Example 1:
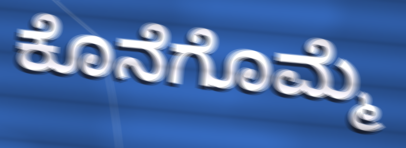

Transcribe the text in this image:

ಕೊನೆಗೊಮ್ಮೆ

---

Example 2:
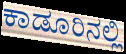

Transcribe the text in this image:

ಕಾಡೂರಿನಲ್ಲಿ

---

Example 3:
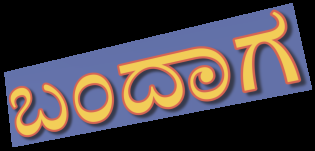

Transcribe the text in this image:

ಬಂದಾಗ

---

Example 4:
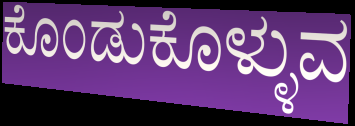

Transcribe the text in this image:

ಕೊಂಡುಕೊಳ್ಳುವ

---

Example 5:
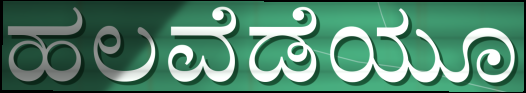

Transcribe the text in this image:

ಹಲವೆಡೆಯೂ